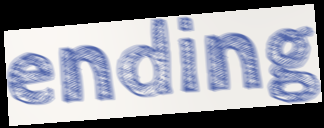
ending